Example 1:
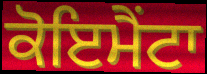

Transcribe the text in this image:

ਕੋਇਮੈਂਟਾ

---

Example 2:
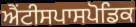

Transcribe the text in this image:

ਐਂਟੀਸਪਾਸਪੋਡਿਕ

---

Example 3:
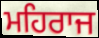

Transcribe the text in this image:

ਮਹਿਰਾਜ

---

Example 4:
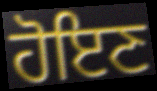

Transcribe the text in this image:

ਹੋਇਣ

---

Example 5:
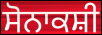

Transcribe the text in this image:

ਸੋਨਾਕਸ਼ੀ